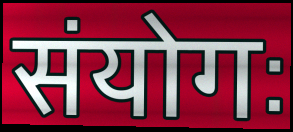
संयोगः